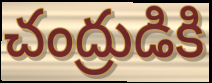
చంద్రుడికి